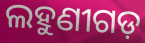
ଲହୁଣୀଗଡ଼